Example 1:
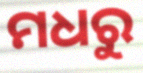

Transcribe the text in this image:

ମଧରୁ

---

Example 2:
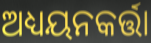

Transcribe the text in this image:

ଅଧ୍ୟୟନକର୍ତ୍ତା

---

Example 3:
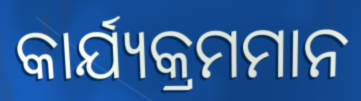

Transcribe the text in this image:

କାର୍ଯ୍ୟକ୍ରମମାନ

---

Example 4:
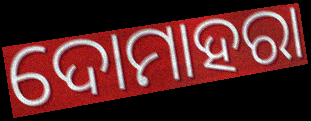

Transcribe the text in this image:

ଦୋମାହରା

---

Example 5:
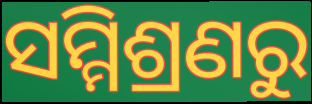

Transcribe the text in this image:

ସମ୍ମିଶ୍ରଣରୁ